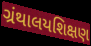
ગ્રંથાલયશિક્ષણ